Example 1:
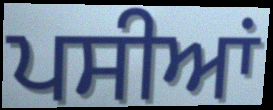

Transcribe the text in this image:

ਪਸੀਆਂ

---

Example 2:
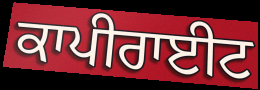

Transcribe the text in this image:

ਕਾਪੀਰਾਈਟ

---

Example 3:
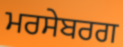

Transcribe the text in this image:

ਮਰਸੇਬਰਗ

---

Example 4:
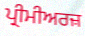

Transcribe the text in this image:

ਪ੍ਰੀਮੀਅਰਜ਼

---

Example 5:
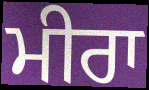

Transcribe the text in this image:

ਮੀਰਾ